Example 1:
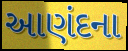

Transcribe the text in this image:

આણંદના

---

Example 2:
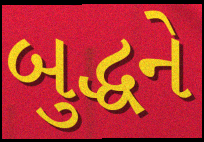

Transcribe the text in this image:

બુદ્ધને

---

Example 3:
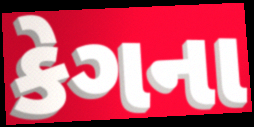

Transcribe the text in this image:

કેગના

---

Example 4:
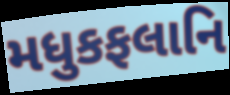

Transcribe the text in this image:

મધુકફલાનિ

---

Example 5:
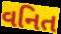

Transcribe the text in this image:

વનિત